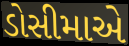
ડોસીમાએ